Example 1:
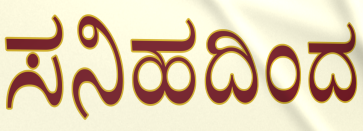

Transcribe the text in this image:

ಸನಿಹದಿಂದ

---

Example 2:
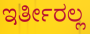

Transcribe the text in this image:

ಇರ್ತೀರಲ್ಲ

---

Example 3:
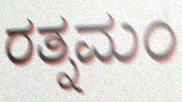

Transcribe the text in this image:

ರತ್ನಮಂ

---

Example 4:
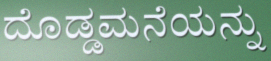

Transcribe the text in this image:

ದೊಡ್ಡಮನೆಯನ್ನು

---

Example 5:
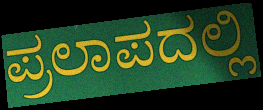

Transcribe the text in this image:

ಪ್ರಲಾಪದಲ್ಲಿ